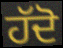
ਹੱਦੋ